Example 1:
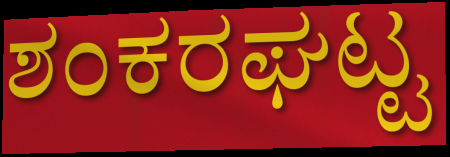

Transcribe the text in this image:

ಶಂಕರಘಟ್ಟ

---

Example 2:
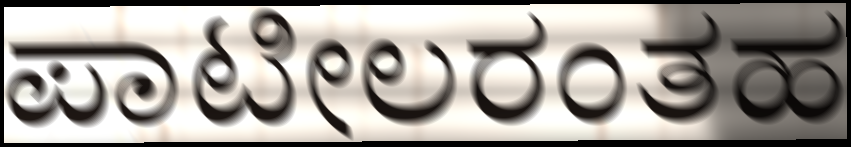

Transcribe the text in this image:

ಪಾಟೀಲರಂತಹ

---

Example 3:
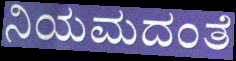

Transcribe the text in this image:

ನಿಯಮದಂತೆ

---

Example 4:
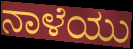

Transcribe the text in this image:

ನಾಳೆಯು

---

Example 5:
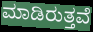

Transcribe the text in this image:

ಮಾಡಿರುತ್ತವೆ